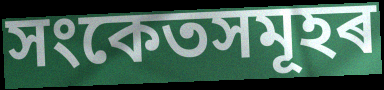
সংকেতসমূহৰ